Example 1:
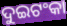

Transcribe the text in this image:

ଦୁଇଟଂକା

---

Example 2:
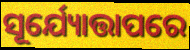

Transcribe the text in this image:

ସୂର୍ଯ୍ୟୋତ୍ତାପରେ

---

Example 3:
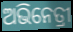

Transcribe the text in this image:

ଅଭିନେତ୍ରୀ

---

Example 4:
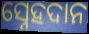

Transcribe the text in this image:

ସ୍ନେହଦାନ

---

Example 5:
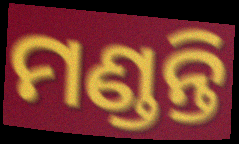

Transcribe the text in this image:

ମଣ୍ଡନ୍ତି